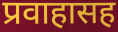
प्रवाहासह